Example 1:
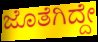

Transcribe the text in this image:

ಜೊತೆಗಿದ್ದೇ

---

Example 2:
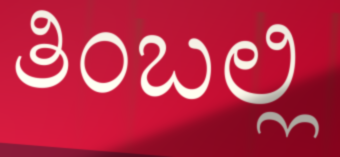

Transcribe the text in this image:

ತಿಂಬಲ್ಲಿ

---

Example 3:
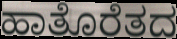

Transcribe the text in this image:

ಹಾತೊರೆತದ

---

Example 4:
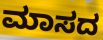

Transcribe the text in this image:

ಮಾಸದ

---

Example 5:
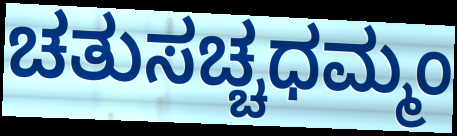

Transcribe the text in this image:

ಚತುಸಚ್ಚಧಮ್ಮಂ